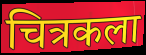
चित्रकला